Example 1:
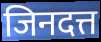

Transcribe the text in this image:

जिनदत्त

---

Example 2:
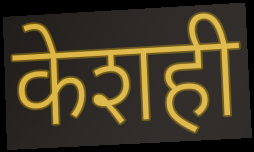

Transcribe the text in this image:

केशही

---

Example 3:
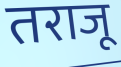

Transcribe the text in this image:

तराजू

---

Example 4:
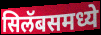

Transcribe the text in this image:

सिलॅबसमध्ये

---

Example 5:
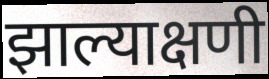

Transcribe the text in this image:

झाल्याक्षणी